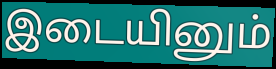
இடையினும்